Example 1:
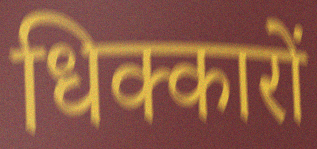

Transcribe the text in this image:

धिक्कारों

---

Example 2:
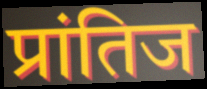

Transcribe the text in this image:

प्रांतिज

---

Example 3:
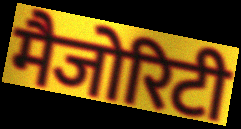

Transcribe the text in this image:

मैजोरिटी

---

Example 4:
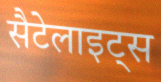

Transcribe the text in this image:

सैटेलाइट्स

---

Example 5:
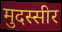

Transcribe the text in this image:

मुदस्सीर